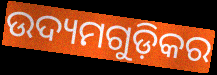
ଉଦ୍ୟମଗୁଡ଼ିକର